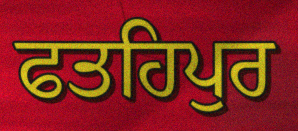
ਫਤਹਿਪੁਰ